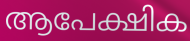
ആപേക്ഷിക